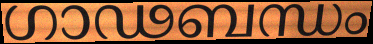
ഗാഢബന്ധം